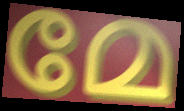
മേ